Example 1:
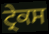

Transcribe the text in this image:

ਟ੍ਰੇਕਸ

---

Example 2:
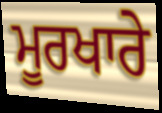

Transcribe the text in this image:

ਮੂਰਖਾਰੇ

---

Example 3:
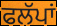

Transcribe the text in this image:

ਫਲੱਪਾਂ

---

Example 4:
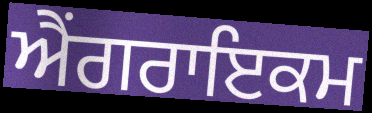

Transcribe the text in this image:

ਐਂਗਰਾਇਕਮ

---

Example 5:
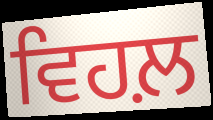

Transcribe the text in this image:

ਵਿਹਲ਼